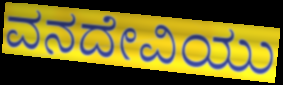
ವನದೇವಿಯು